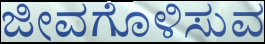
ಜೀವಗೊಳಿಸುವ